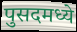
पुसदमध्ये